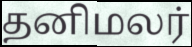
தனிமலர்